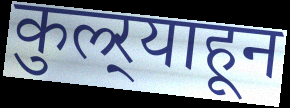
कुल्र्याहून